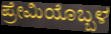
ಪ್ರೇಮಿಯೊಬ್ಬಳ